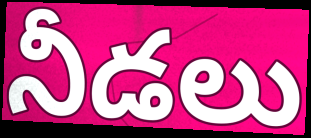
నీడలు